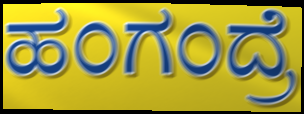
ಹಂಗಂದ್ರೆ